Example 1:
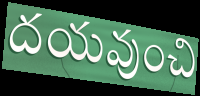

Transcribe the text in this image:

దయవుంచి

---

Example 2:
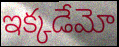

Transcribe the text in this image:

ఇక్కడేమో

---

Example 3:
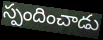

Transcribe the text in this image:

స్పందించాడు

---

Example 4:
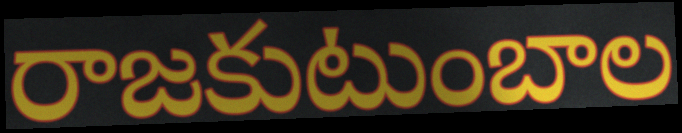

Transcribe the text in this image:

రాజకుటుంబాల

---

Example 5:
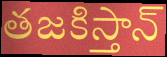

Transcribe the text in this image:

తజకిస్తాన్